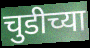
चुडीच्या